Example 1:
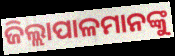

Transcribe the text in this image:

ଜିଲ୍ଲାପାଳମାନଙ୍କୁ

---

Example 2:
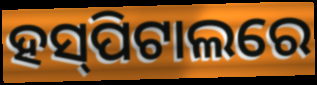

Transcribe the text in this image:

ହସ୍‌ପିଟାଲରେ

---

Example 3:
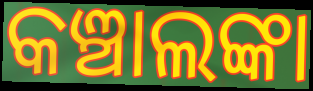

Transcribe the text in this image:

କଞ୍ଚାଲଙ୍କା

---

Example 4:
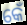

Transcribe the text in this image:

କେଁ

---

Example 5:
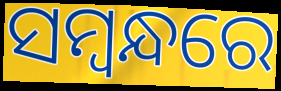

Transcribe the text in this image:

ସମ୍ବନ୍ଧରେ